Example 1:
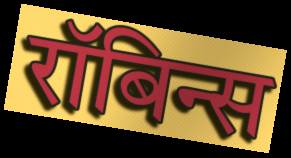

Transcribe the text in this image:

रॉबिन्स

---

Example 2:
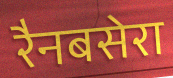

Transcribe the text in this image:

रैनबसेरा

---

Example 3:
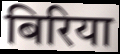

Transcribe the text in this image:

बिरिया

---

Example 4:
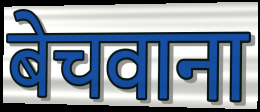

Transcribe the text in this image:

बेचवाना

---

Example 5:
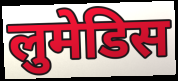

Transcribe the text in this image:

लुमेडिस